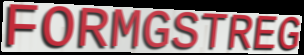
FORMGSTREG